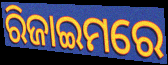
ରିଜାଇମରେ